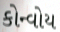
કોન્વોય